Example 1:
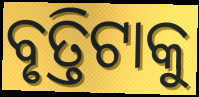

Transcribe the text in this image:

ବୃତ୍ତିଟାକୁ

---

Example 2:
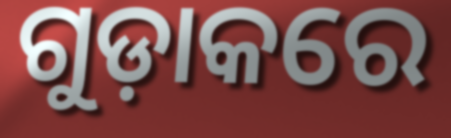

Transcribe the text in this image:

ଗୁଡ଼ାକରେ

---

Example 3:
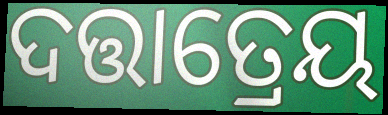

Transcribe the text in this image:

ଦତ୍ତାତ୍ରେୟ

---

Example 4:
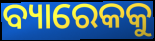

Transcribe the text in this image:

ବ୍ୟାରେକକୁ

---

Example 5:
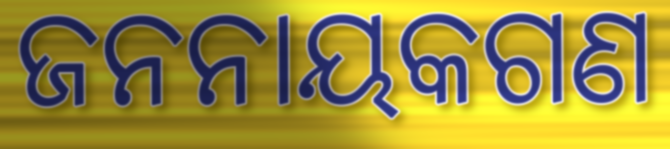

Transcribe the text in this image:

ଜନନାୟକଗଣ